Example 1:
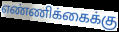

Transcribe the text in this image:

எண்ணிக்கைக்கு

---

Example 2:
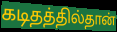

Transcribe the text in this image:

கடிதத்தில்தான்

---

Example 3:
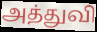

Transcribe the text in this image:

அத்துவி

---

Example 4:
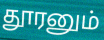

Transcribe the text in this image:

தூரனும்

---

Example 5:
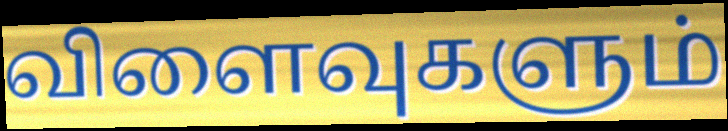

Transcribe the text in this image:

விளைவுகளும்